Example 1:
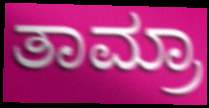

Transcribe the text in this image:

ತಾಮ್ರಾ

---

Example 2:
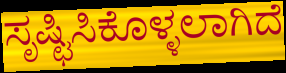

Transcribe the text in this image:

ಸೃಷ್ಟಿಸಿಕೊಳ್ಳಲಾಗಿದೆ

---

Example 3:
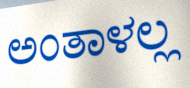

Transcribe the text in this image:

ಅಂತಾಳಲ್ಲ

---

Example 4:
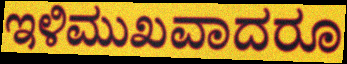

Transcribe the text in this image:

ಇಳಿಮುಖವಾದರೂ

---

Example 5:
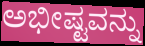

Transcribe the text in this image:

ಅಭೀಷ್ಟವನ್ನು